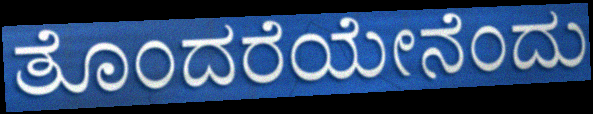
ತೊಂದರೆಯೇನೆಂದು